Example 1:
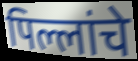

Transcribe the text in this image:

पिल्लांचे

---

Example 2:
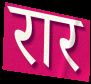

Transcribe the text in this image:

रार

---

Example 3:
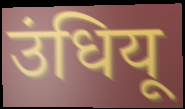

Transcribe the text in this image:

उंधियू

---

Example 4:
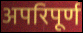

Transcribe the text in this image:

अपरिपूर्ण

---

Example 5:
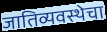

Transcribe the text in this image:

जातिव्यवस्थेचा